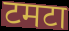
टमटा